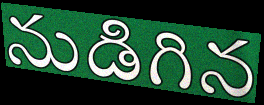
నుడిగిన